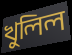
খুলিল